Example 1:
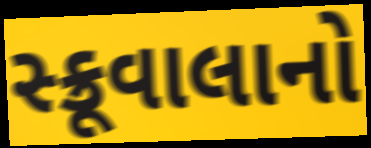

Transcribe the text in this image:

સ્ક્રૂવાલાનો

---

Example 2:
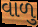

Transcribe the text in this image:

વાળુ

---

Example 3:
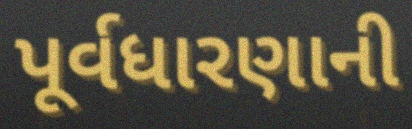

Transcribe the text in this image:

પૂર્વધારણાની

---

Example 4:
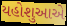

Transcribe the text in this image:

યહોશુઆએ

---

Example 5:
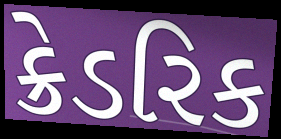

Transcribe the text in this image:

ક્રેડરિક